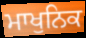
ਮਾਖੁਨਿਕ